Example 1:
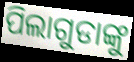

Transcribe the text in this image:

ପିଲାଗୁଡାଙ୍କୁ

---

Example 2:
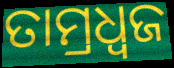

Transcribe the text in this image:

ତାମ୍ରଧ୍ୱଜ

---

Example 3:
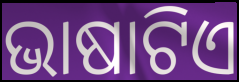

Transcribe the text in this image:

ଭାଷାଟିଏ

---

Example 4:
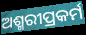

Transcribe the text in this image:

ଅଶ୍ମରୀପ୍ରକର୍ମ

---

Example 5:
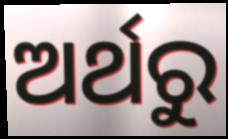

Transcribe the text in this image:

ଅର୍ଥରୁ